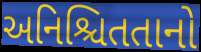
અનિશ્ચિતતાનો